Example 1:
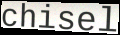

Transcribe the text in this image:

chisel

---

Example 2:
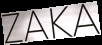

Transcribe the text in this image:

ZAKA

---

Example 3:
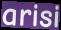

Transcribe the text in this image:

arisi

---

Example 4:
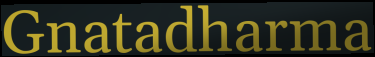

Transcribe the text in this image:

Gnatadharma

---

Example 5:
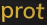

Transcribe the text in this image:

prot